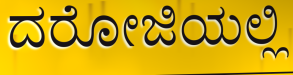
ದರೋಜಿಯಲ್ಲಿ